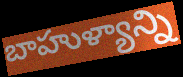
బాహుళ్యాన్ని